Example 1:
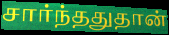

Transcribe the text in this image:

சார்ந்ததுதான்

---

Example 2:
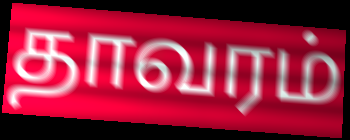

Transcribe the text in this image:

தாவரம்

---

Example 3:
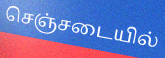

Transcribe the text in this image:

செஞ்சடையில்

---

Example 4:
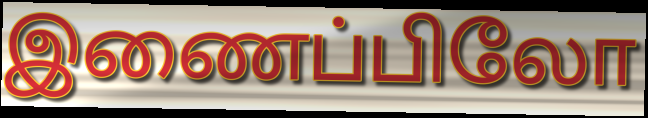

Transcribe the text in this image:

இணைப்பிலோ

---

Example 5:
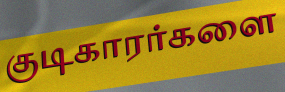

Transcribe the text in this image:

குடிகாரர்களை